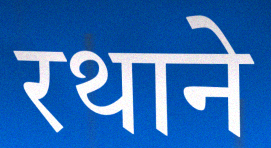
रथाने